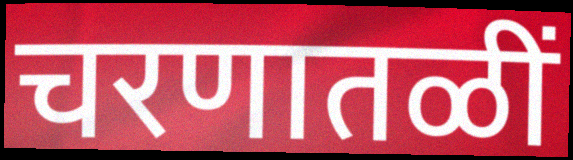
चरणातळीं